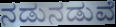
ನಡುನಡುವೆ